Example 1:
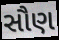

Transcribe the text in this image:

સૌણ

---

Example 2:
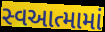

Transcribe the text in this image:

સ્વઆત્મામાં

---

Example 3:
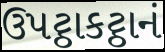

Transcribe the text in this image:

ઉપટ્ઠાકટ્ઠાનં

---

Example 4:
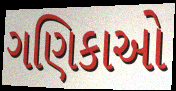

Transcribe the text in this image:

ગણિકાઓ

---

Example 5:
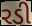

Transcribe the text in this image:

રડી